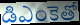
డిఎంకెతో